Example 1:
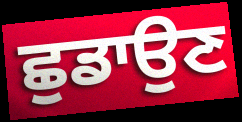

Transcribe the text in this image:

ਛੁਡਾਉਣ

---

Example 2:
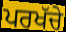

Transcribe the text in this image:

ਪਰਖੱਚੇ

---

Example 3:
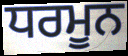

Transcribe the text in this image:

ਧਰਮੂਨ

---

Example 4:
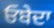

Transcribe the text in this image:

ਓਬੇਦਾ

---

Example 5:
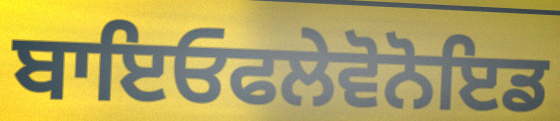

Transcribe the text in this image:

ਬਾਇਓਫਲੇਵੋਨੋਇਡ